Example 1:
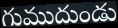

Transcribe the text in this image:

గుముదుండు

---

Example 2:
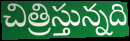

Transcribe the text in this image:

చిత్రిస్తున్నది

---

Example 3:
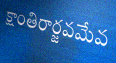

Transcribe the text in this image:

క్షాంతిరార్జవమేవ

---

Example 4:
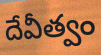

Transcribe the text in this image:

దేవీత్వం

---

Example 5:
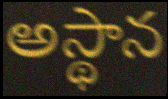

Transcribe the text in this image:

అస్థాన